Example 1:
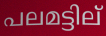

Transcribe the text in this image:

പലമട്ടില്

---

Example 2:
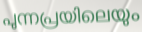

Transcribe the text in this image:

പുന്നപ്രയിലെയും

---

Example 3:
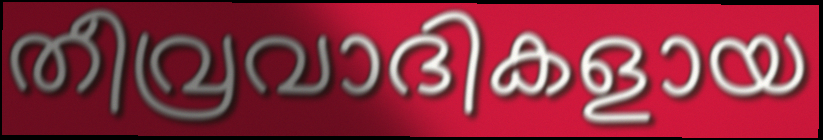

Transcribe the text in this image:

തീവ്രവാദികളായ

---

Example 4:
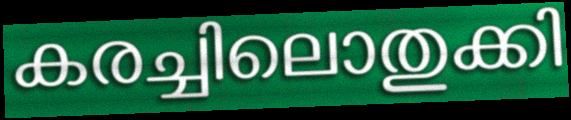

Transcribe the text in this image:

കരച്ചിലൊതുക്കി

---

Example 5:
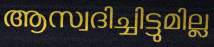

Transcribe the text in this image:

ആസ്വദിച്ചിട്ടുമില്ല